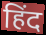
हिंद